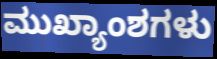
ಮುಖ್ಯಾಂಶಗಳು